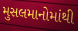
મુસલમાનોમાંથી